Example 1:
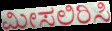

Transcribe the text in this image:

ಮೀಸಲಿರಿಸಿ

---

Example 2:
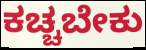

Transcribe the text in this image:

ಕಚ್ಚಬೇಕು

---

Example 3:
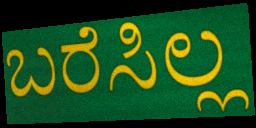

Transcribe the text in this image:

ಬರೆಸಿಲ್ಲ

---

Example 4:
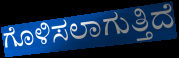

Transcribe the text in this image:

ಗೊಳಿಸಲಾಗುತ್ತಿದೆ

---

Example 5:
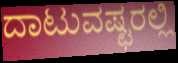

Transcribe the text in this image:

ದಾಟುವಷ್ಟರಲ್ಲಿ